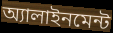
অ্যালাইনমেন্ট